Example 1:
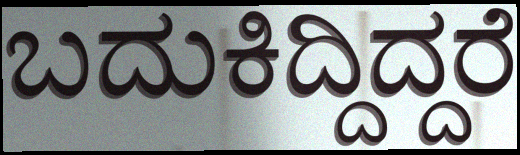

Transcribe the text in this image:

ಬದುಕಿದ್ದಿದ್ದರೆ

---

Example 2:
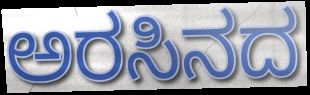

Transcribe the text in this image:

ಅರಸಿನದ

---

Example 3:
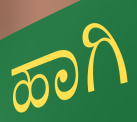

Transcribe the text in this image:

ಹಾಗಿ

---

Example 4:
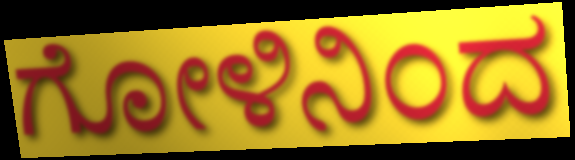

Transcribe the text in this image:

ಗೋಳಿನಿಂದ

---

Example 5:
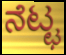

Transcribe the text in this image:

ನೆಟ್ಟ